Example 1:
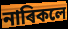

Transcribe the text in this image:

নাৰিকলে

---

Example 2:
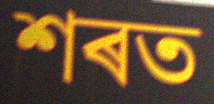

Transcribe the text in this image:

শৰত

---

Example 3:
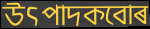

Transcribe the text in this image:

উৎপাদকবোৰ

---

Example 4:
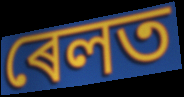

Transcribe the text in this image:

ৰেলত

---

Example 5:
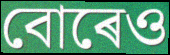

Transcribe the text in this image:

বোৰেও